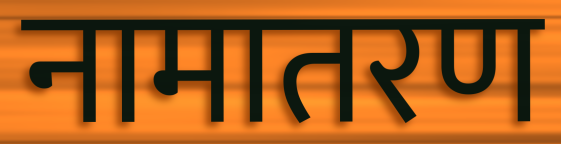
नामातरण